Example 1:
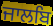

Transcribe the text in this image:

ਜਾਲਬਿ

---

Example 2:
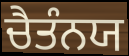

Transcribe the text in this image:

ਚੈਤੰਨਯ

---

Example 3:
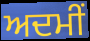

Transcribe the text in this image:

ਅਦਮੀਂ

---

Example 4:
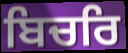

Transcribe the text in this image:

ਬਿਚਰਿ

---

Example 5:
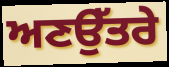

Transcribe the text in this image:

ਅਣਉੱਤਰੇ